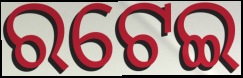
ରଟେଇ